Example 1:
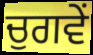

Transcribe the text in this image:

ਚੁਗਵੇਂ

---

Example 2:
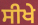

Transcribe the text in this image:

ਸੀਖੇ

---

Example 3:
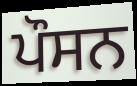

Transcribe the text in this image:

ਪੌਸਨ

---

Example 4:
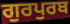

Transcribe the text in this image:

ਗੁਰਪੁਰਬ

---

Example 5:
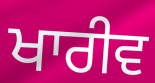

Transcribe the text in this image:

ਖਾਰੀਵ